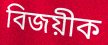
বিজয়ীক